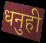
धनुही